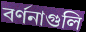
বর্ণনাগুলি